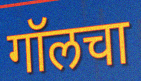
गॉलचा